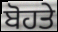
ਬੋਹਤੇ